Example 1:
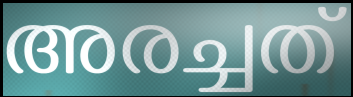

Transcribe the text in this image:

അരച്ചത്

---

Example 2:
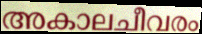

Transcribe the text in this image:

അകാലചീവരം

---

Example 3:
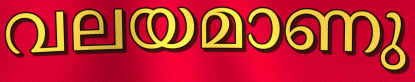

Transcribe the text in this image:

വലയമാണു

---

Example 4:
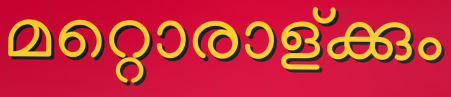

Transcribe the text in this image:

മറ്റൊരാള്ക്കും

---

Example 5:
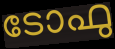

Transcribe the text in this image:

ടോഫു